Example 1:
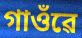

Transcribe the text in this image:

গাওঁৱে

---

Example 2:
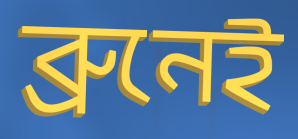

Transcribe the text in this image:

ব্ৰুনেই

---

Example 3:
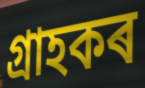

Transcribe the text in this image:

গ্ৰাহকৰ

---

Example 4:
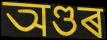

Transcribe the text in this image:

অণ্ডৰ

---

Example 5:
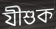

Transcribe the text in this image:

যীশুক